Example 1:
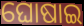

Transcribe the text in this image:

ଘୋଷାଇ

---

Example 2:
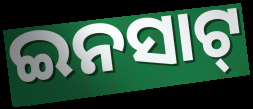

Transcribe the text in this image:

ଇନସାଟ୍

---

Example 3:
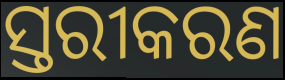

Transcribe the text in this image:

ସ୍ତରୀକରଣ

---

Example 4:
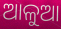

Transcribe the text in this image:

ଆଳୁଆ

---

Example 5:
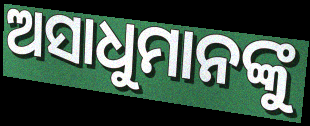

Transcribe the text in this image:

ଅସାଧୁମାନଙ୍କୁ